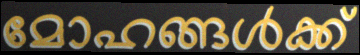
മോഹങ്ങൾക്ക്